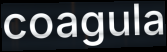
coagula